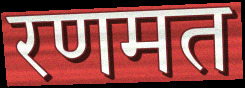
रणमत